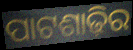
ପାଟଶାଢ଼ିର